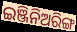
ଇଞ୍ଜିନିଅରିଙ୍ଗ